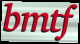
bmtf